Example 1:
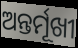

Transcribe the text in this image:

ଅନ୍ତର୍ମୂଖୀ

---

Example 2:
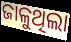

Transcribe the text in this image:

ଜାଳୁଥିଲା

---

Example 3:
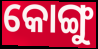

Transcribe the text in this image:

କୋଙ୍ଗୁ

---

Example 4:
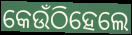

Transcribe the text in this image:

କେଉଁଠିହେଲେ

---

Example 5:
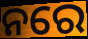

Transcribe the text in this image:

ନରେ